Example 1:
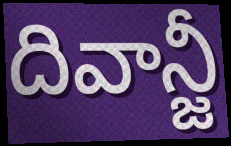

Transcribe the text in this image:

దివాన్జీ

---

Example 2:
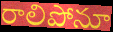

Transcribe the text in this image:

రాలిపోనూ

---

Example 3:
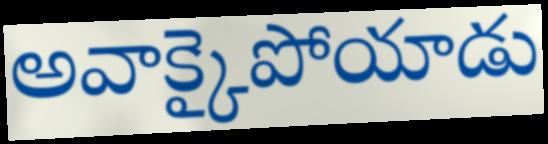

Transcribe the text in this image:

అవాక్కైపోయాడు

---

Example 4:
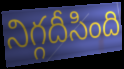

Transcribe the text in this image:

నిగ్గదీసింది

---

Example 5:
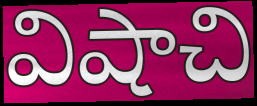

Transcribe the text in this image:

విషాచి